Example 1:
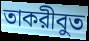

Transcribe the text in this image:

তাকরীবুত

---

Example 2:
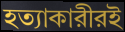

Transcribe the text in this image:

হত্যাকারীরই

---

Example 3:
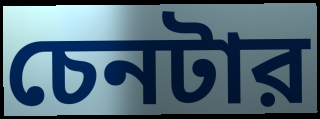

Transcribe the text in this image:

চেনটার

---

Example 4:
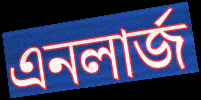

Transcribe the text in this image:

এনলার্জ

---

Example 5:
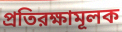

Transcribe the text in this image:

প্রতিরক্ষামূলক